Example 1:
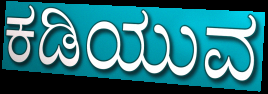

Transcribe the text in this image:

ಕಡಿಯುವ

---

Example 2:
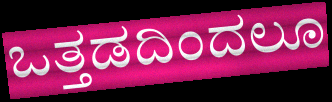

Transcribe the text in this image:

ಒತ್ತಡದಿಂದಲೂ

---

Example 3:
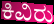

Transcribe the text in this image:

ಕಿವಿರು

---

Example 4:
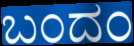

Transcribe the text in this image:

ಬಂದಂ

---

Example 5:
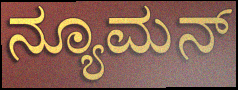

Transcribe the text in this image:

ನ್ಯೂಮನ್